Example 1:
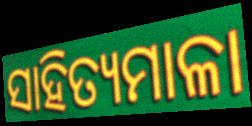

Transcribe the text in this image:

ସାହିତ୍ୟମାଳା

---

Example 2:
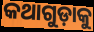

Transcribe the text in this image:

କଥାଗୁଡ଼ାକୁ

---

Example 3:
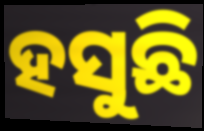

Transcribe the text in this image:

ହସୁଛି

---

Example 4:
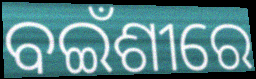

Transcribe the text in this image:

ବଇଁଶୀରେ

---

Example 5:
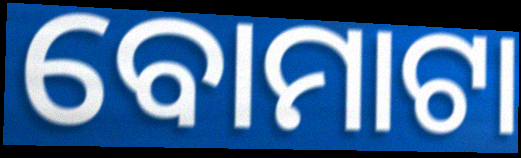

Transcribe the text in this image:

ବୋମାଟା